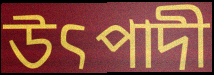
উৎপাদী